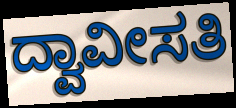
ದ್ವಾವೀಸತಿ